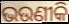
ଭଉଣୀକି